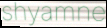
shyamne